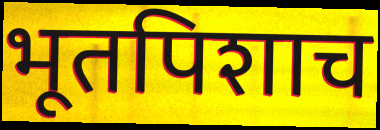
भूतपिशाच